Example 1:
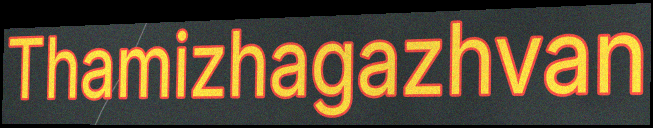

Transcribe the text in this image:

Thamizhagazhvan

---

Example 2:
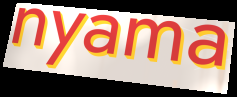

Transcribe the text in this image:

nyama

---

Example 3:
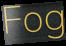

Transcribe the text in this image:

Fog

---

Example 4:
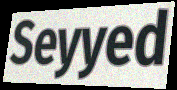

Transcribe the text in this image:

Seyyed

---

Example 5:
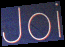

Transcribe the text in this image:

Joi